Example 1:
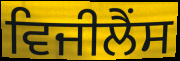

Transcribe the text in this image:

ਵਿਜੀਲੈਂਸ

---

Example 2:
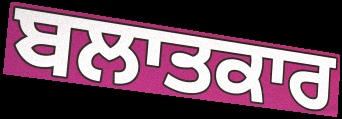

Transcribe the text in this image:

ਬਲਾਤਕਾਰ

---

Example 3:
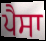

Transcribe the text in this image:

ਪੈਸਾ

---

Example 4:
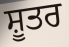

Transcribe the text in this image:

ਸ਼ੂਤਰ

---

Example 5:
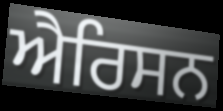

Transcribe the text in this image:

ਐਰਿਸਨ